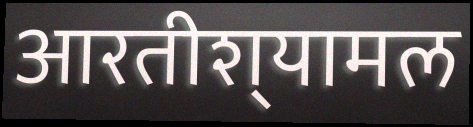
आरतीश्यामल